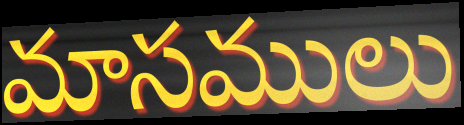
మాసములు